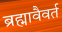
ब्रह्मावैवर्त